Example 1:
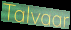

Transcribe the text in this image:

Talvaar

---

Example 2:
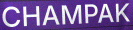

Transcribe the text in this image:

CHAMPAK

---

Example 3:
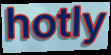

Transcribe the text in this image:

hotly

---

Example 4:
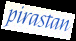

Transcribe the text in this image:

pirastan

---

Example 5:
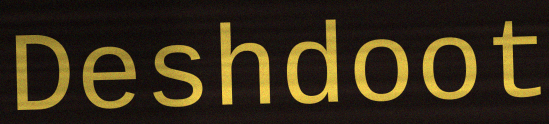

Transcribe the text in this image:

Deshdoot